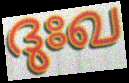
ദുഃഖ